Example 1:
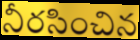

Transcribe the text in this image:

నీరసించిన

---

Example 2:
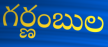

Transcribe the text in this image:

గర్ణంబుల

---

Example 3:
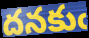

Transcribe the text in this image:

దనకుఁ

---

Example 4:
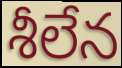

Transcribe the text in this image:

శీలేన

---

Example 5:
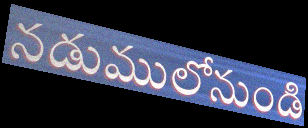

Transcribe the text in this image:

నడుములోనుండి